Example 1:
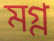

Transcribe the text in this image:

মগ্ন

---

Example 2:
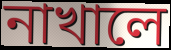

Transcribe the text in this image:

নাখালে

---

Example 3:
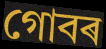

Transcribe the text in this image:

গোবৰ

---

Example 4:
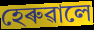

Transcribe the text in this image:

হেৰুৱালে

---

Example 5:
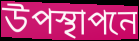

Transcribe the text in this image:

উপস্থাপনে